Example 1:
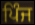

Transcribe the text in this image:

ਪਿੰਜ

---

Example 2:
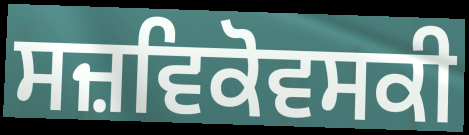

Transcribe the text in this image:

ਸਜ਼ਵਿਕੋਵਸਕੀ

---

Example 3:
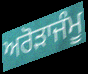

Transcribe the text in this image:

ਅਰੋੜਾਜੰਮੂ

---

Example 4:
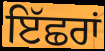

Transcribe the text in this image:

ਇੱਛਰਾਂ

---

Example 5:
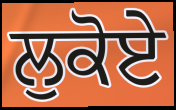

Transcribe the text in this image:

ਲੁਕੋਏ